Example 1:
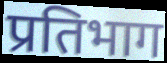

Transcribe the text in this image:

प्रतिभाग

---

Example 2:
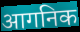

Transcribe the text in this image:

आगनिक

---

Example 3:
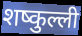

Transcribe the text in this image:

शष्कुल्ली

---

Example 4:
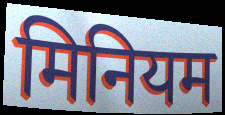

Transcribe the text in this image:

मिनियम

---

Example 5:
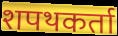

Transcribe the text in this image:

शपथकर्ता